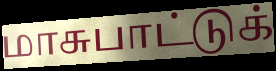
மாசுபாட்டுக்